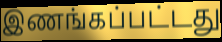
இணங்கப்பட்டது